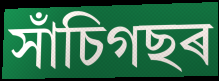
সাঁচিগছৰ